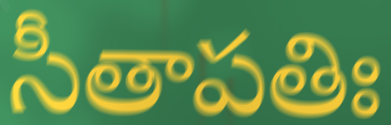
సీతాపతిః